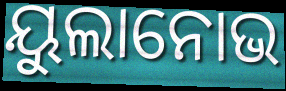
ୟୁଲାନୋଭ